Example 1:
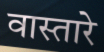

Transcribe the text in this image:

वास्तारे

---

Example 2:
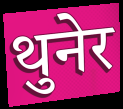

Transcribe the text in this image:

थुनेर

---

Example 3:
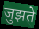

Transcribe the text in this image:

जुझते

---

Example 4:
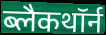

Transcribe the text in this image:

ब्लैकथॉर्न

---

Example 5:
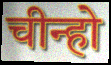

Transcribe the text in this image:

चीन्हो